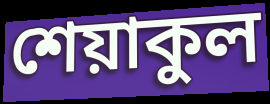
শেয়াকুল